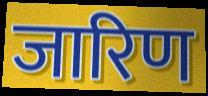
जारिण